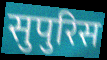
सुपुरिस